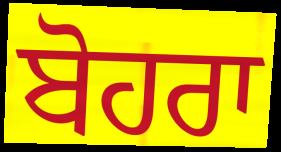
ਬੋਹਰਾ